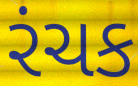
રંચક